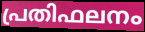
പ്രതിഫലനം